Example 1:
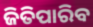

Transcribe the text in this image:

ଜିତିପାରିବ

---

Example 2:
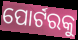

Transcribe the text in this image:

ପୋର୍ଟରକୁ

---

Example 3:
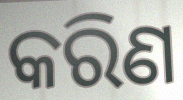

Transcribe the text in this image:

କରିଣ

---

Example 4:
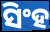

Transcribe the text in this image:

ସିଂହ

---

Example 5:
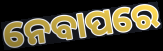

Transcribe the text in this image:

ନେବାପରେ